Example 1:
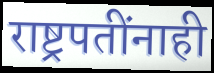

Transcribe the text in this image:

राष्ट्रपतींनाही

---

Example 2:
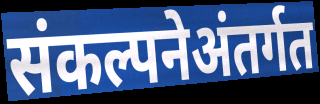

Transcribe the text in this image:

संकल्पनेअंतर्गत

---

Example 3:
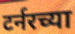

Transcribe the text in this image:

टर्नरच्या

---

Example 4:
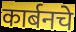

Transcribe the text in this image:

कार्बनचे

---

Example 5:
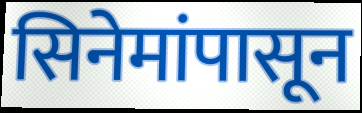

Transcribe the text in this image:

सिनेमांपासून